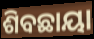
ଶିବଛାୟା